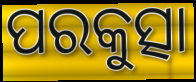
ପରକୁତ୍ସା